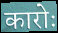
कारोः